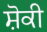
ਸ਼ੋਕੀ